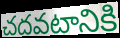
చదవటానికి